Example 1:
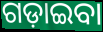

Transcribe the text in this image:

ଗଡ଼ାଇବା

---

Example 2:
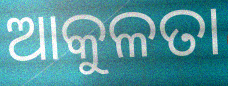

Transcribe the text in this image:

ଆକୁଳତା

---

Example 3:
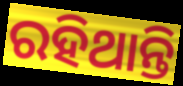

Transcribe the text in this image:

ରହିଥାନ୍ତି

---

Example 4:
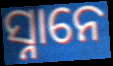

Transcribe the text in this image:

ସ୍ନାନେ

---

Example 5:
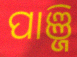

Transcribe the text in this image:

ପାଞ୍ଜି